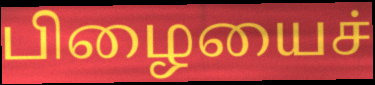
பிழையைச்